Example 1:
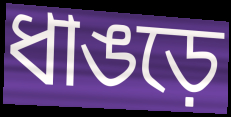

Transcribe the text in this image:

ধাঙড়ে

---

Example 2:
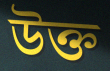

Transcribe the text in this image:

উক্ত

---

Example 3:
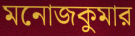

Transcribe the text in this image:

মনোজকুমার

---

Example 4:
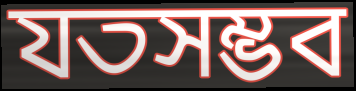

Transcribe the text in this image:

যতসম্ভব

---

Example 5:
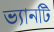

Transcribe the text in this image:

ভ্যানটি